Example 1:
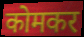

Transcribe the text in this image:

कोमकर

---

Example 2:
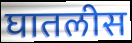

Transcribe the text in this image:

घातलीस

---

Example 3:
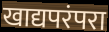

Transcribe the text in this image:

खाद्यपरंपरा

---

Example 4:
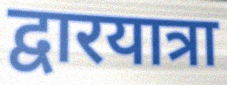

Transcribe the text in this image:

द्वारयात्रा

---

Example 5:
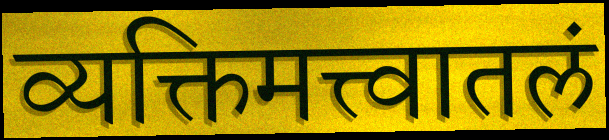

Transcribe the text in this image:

व्यक्तिमत्त्वातलं